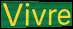
Vivre